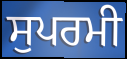
ਸੁਪਰਮੀ